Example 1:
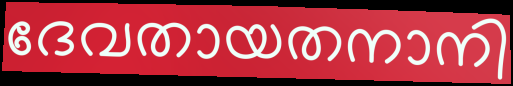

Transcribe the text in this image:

ദേവതായതനാനി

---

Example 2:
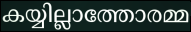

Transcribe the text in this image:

കയ്യില്ലാത്തോരമ്മ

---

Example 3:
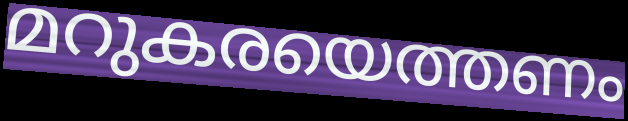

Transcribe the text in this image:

മറുകരയെത്തണം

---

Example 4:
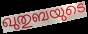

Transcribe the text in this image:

ഖുതുബയുടെ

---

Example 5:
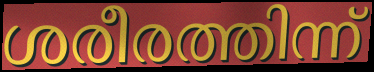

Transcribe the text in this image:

ശരീരത്തിന്ന്